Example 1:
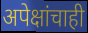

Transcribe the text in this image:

अपेक्षांचाही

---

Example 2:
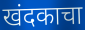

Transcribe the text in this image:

खंदकाचा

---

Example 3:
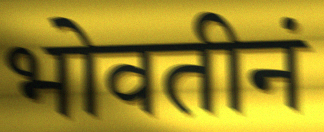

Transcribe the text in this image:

भोवतीनं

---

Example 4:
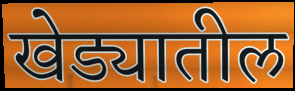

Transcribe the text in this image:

खेड्यातील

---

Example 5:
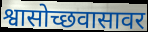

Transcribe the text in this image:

श्वासोच्छवासावर